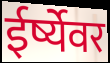
ईर्ष्येवर